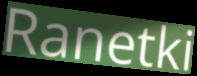
Ranetki